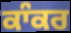
ਕਾੰਕਰ